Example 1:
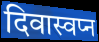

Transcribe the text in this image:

दिवास्‍वप्‍न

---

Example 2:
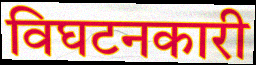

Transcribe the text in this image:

विघटनकारी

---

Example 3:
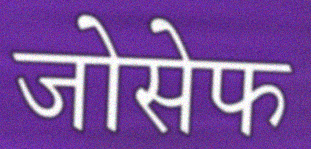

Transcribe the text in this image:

जोसेफ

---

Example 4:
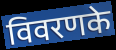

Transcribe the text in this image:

विवरणके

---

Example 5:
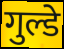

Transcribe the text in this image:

गुल्डे